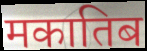
मकातिब